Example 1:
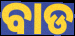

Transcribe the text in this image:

ବାଡ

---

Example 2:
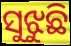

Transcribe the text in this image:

ସୁଝୁଛି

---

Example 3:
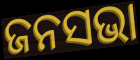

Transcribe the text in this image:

ଜନସଭା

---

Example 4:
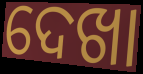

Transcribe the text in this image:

ଦେଖା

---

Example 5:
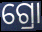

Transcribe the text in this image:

ଗ୍ରୋ